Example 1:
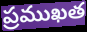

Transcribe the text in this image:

ప్రముఖత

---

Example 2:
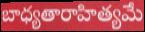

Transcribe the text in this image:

బాధ్యతారాహిత్యమే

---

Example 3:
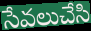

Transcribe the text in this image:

సేవలుచేసి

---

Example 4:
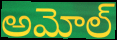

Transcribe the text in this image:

అమోల్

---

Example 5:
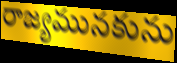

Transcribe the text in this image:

రాజ్యమునకును